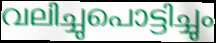
വലിച്ചുപൊട്ടിച്ചും